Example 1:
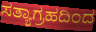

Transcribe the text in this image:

ಸತ್ಯಾಗ್ರಹದಿಂದ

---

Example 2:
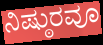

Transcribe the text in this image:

ನಿಷ್ಠುರವೂ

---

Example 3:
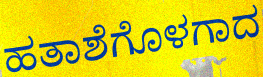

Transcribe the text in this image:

ಹತಾಶೆಗೊಳಗಾದ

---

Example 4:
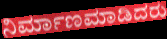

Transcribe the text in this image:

ನಿರ್ಮಾಣಮಾಡಿದರು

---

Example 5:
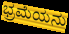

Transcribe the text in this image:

ಭ್ರಮೆಯನು